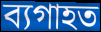
ব্যগাহত